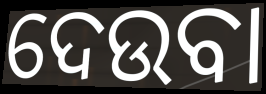
ଦେଉବା